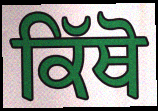
ਕਿੱਥੋ